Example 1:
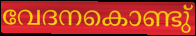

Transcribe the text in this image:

വേദനകൊണ്ടു്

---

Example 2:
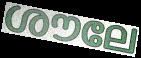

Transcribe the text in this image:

ശൗലേ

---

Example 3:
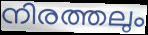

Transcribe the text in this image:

നിരത്തലും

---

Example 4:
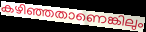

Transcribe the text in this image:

കഴിഞ്ഞതാണെങ്കിലും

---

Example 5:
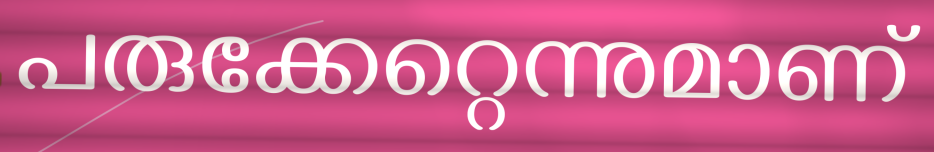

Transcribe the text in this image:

പരുക്കേറ്റെന്നുമാണ്